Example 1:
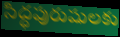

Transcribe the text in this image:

సిద్ధపురుషులకు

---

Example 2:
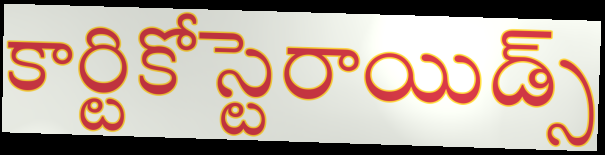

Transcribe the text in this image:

కార్టికోస్టెరాయిడ్స్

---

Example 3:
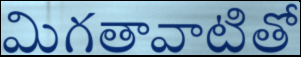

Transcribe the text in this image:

మిగతావాటితో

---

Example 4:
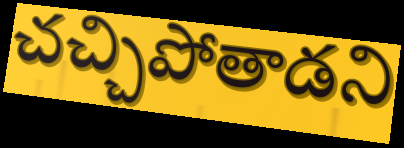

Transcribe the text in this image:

చచ్చిపోతాడని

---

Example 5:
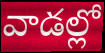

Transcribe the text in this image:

వాడల్లో